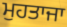
ਮੁਹਤਾਜਾ